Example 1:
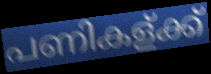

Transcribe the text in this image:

പണികള്ക്ക്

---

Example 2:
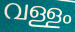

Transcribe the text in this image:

വള്ളം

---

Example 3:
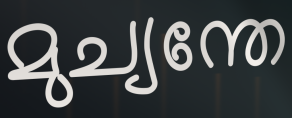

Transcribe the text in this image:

മുച്യന്തേ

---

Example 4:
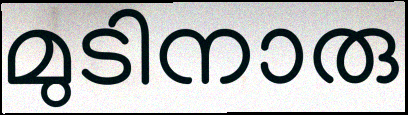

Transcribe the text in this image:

മുടിനാരു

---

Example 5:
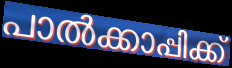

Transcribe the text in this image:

പാൽക്കാപ്പിക്ക്